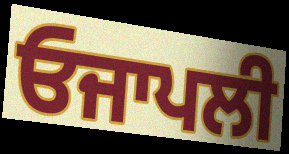
ਓਜਾਪਲੀ